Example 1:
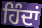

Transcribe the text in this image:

ਹਿੰਦਾਂ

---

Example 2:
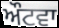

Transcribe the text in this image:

ਔਟਵਾ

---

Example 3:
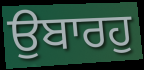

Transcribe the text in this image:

ਉਬਾਰਹੁ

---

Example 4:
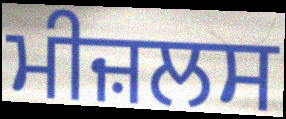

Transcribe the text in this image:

ਮੀਜ਼ਲਸ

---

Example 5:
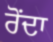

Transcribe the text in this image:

ਰੋਂਦਾ